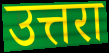
उत्तरा